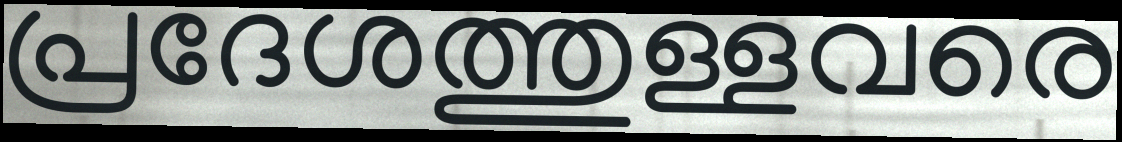
പ്രദേശത്തുള്ളവരെ